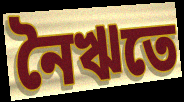
নৈঋতে